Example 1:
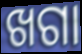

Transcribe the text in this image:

ଖଗା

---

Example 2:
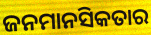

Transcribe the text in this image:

ଜନମାନସିକତାର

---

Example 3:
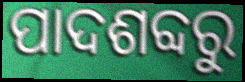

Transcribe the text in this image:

ପାଦଶବ୍ଦରୁ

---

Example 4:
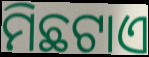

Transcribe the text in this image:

ମିଛଟାଏ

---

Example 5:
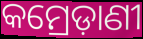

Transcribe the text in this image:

କମ୍ରେଡ଼ାଣୀ